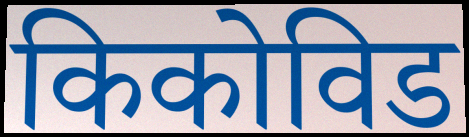
किकोविड